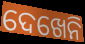
ଦେଖେନି